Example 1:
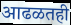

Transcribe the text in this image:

आढळतही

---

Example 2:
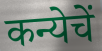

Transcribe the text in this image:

कन्येचें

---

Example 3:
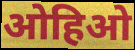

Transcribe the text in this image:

ओहिओ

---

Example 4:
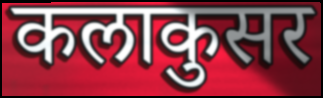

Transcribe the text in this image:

कलाकुसर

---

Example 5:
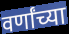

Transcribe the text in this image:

वर्णांच्या